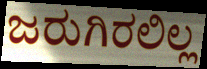
ಜರುಗಿರಲಿಲ್ಲ